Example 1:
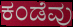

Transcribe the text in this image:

ಕಂಡೆವು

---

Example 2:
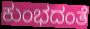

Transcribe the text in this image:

ಕುಂಭದಂತೆ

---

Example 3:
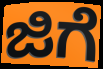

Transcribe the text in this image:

ಜಿಗೆ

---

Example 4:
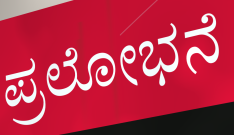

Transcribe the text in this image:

ಪ್ರಲೋಭನೆ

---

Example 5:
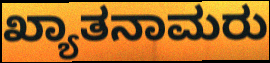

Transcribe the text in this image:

ಖ್ಯಾತನಾಮರು